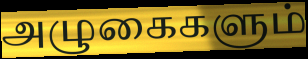
அழுகைகளும்